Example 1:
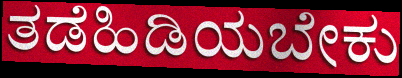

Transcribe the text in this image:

ತಡೆಹಿಡಿಯಬೇಕು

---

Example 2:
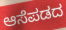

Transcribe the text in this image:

ಆಸೆಪಡದ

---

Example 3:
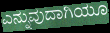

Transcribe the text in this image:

ಎನ್ನುವುದಾಗಿಯೂ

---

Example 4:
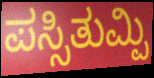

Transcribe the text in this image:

ಪಸ್ಸಿತುಮ್ಪಿ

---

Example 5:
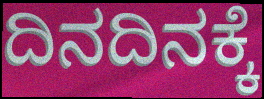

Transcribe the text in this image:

ದಿನದಿನಕ್ಕೆ